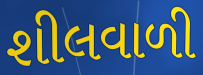
શીલવાળી